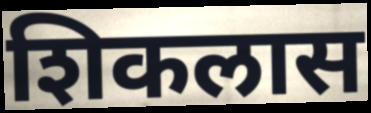
शिकलास